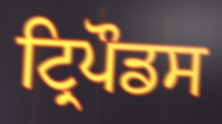
ਟ੍ਰਿਪੌਡਸ